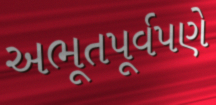
અભૂતપૂર્વપણે